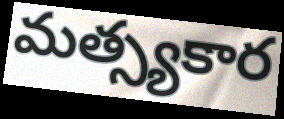
మత్స్యకార